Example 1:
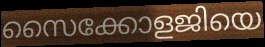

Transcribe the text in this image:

സൈക്കോളജിയെ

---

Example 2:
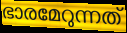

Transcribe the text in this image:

ഭാരമേറുന്നത്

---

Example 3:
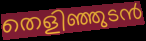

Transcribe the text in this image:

തെളിഞ്ഞുടൻ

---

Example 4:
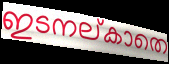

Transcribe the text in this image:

ഇടനല്കാതെ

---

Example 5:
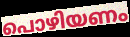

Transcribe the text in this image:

പൊഴിയണം